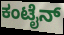
ಕಂಟೈನ್